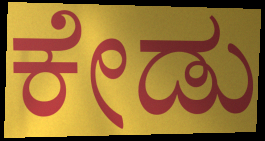
ಕೇಡು